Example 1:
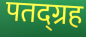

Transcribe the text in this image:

पतद्ग्रह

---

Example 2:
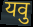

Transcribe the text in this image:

यवु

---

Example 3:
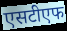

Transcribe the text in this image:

एसटीएफ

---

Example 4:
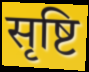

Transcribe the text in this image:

सृष्टि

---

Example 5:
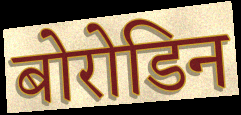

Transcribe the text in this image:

बोरोडिन